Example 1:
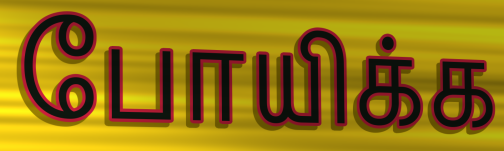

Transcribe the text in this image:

போயிக்க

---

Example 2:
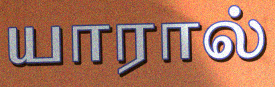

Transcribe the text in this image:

யாரால்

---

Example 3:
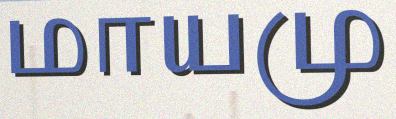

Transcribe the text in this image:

மாயமு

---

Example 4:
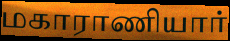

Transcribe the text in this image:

மகாராணியார்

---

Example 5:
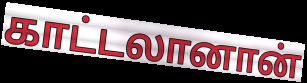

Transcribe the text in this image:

காட்டலானான்